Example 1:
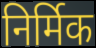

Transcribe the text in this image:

निर्मिक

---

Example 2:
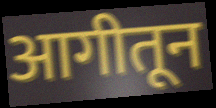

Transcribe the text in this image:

आगीतून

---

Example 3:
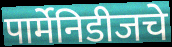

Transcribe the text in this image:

पार्मेनिडीजचे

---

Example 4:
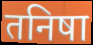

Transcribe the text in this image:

तनिषा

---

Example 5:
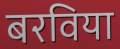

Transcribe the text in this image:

बरविया